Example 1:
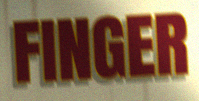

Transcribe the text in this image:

FINGER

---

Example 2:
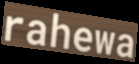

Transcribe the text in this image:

rahewa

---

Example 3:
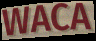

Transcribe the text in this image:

WACA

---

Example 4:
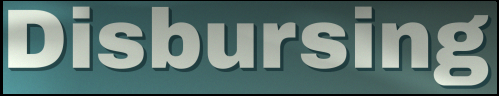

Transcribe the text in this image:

Disbursing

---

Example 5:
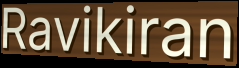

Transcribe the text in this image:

Ravikiran